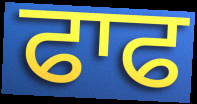
ਫਾਫ